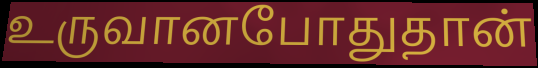
உருவானபோதுதான்